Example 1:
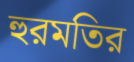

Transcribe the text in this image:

হুরমতির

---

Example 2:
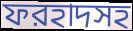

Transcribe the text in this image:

ফরহাদসহ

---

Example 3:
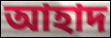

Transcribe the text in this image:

আহাদ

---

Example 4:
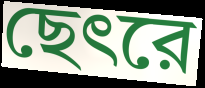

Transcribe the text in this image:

ছেৎরে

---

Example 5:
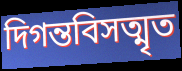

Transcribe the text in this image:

দিগন্তবিসত্মৃত